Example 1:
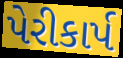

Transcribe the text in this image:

પેરીકાર્પ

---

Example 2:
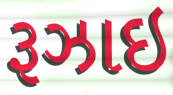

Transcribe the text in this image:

રૂઝાઇ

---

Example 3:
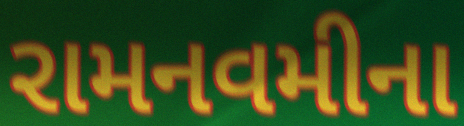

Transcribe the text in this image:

રામનવમીના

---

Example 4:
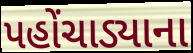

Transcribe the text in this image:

પહોંચાડ્યાના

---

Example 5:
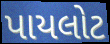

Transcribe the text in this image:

પાયલોટ